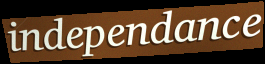
independance